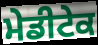
ਮੇਡੀਟੇਕ